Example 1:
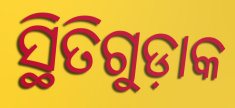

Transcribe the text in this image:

ସ୍ଥିତିଗୁଡ଼ାକ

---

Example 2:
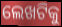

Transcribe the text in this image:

ଲେଖଟିକୁ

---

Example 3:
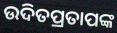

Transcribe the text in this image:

ଉଦିତପ୍ରତାପଙ୍କ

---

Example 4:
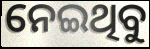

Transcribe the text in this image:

ନେଇଥିବୁ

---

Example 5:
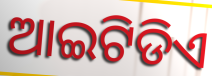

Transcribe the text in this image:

ଆଇଟିଡିଏ